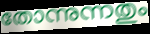
തോന്നുന്നതും